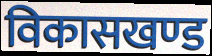
विकासखण्‍ड